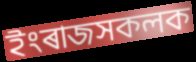
ইংৰাজসকলক